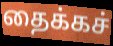
தைக்கச்